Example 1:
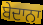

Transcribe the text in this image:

ਬੇਦਾਨਾ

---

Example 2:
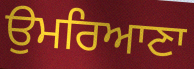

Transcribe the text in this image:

ਉਮਰਿਆਣਾ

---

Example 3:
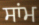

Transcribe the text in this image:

ਸਾਂਮ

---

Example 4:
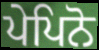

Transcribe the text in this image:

ਪੇਪਿਨੋ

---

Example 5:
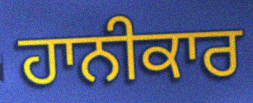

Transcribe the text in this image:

ਹਾਨੀਕਾਰ